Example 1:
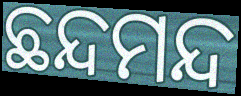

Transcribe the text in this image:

ଛନ୍ଦମନ୍ଦ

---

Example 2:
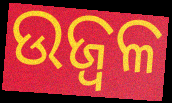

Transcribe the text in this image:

ଉଜ୍ବଳ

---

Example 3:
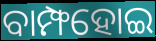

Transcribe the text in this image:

ବାମ୍ଫହୋଇ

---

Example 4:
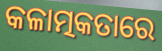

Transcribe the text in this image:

କଳାତ୍ମକତାରେ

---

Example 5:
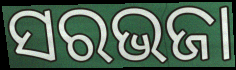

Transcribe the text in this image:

ସରଭଜା